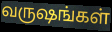
வருஷங்கள்